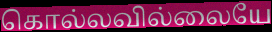
கொல்லவில்லையே